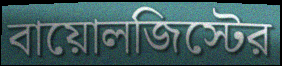
বায়োলজিস্টের